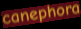
canephora